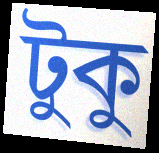
টুকু